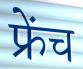
फ्रेंच